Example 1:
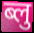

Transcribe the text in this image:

ब्लु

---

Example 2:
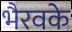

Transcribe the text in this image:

भैरवके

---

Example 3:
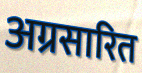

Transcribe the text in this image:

अग्रसारित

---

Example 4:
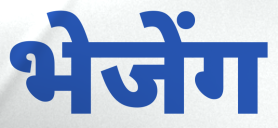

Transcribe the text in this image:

भेजेंग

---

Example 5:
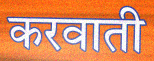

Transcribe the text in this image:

करवाती